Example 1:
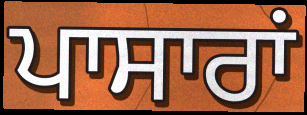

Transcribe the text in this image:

ਪਾਸਾਰਾਂ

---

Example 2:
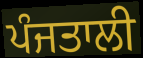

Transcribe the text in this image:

ਪੰਜਤਾਲੀ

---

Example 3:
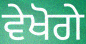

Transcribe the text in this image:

ਵੇਖੋਗੇ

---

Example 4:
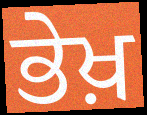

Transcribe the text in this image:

ਭੇਖ਼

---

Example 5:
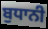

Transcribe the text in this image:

ਬੁਧਾਨੀ